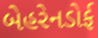
બેહરેનડોર્ફ